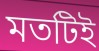
মতটিই